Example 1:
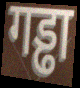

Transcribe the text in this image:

गड्ढा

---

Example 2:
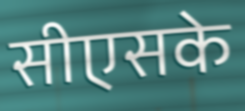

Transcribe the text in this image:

सीएसके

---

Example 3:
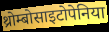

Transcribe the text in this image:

थ्रोम्बोसाइटोपेनिया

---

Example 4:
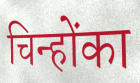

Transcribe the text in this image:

चिन्होंका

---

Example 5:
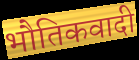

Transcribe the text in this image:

भौतिकवादी